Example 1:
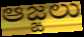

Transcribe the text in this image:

ఆజ్ఙలు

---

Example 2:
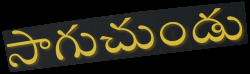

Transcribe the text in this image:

సాగుచుండు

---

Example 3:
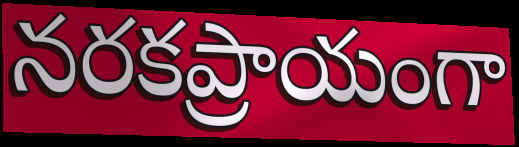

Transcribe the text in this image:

నరకప్రాయంగా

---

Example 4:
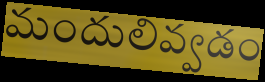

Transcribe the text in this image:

మందులివ్వడం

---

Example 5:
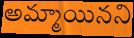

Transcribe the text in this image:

అమ్మాయినని